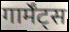
गार्मेंट्स